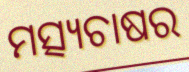
ମତ୍ସ୍ୟଚାଷର